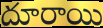
దూరాయి